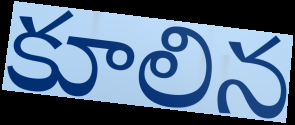
కూలిన